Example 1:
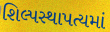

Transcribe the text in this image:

શિલ્પસ્થાપત્યમાં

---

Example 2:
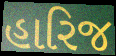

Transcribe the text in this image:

હારિજ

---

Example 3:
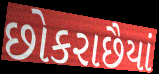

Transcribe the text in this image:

છોકરાછૈયાં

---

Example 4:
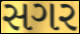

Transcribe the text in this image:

સગર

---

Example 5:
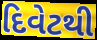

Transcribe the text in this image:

દિવેટથી